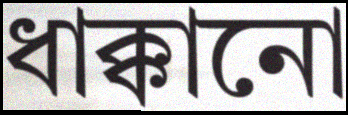
ধাক্কানো